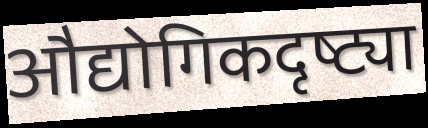
औद्योगिकदृष्ट्या